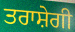
ਤਰਾਸ਼ੇਗੀ